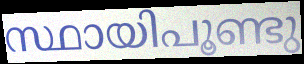
സ്ഥായിപൂണ്ടു